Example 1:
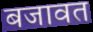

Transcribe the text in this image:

बजावत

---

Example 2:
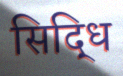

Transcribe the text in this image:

सिद्धि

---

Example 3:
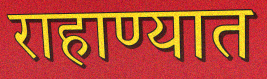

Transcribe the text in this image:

राहाण्यात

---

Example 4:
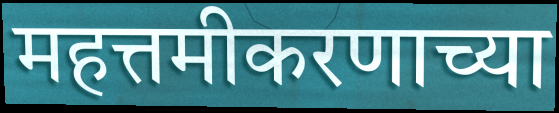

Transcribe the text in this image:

महत्तमीकरणाच्या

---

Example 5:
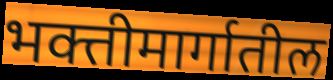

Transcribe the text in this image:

भक्तीमार्गातील